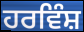
ਹਰਵਿੰਸ਼